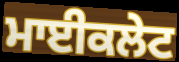
ਮਾਈਕਲੇਟ